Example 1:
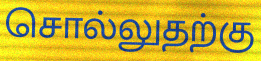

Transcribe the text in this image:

சொல்லுதற்கு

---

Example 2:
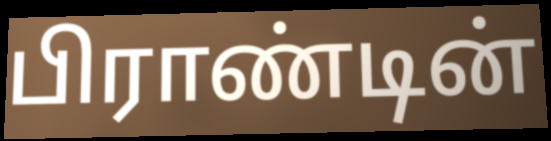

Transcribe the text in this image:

பிராண்டின்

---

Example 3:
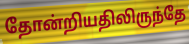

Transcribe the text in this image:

தோன்றியதிலிருந்தே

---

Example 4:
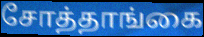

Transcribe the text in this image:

சோத்தாங்கை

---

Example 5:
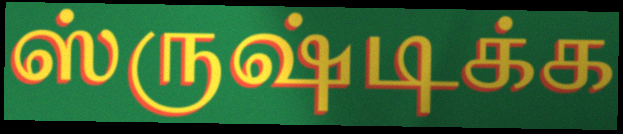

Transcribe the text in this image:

ஸ்ருஷ்டிக்க